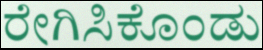
ರೇಗಿಸಿಕೊಂಡು